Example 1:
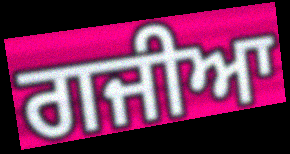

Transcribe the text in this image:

ਗਜੀਆ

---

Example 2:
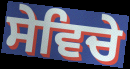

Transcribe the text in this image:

ਸੇਵਿਚੇ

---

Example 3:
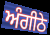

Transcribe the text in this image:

ਅੰਗੀਠੇ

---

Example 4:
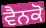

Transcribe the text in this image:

ਵੈਨਕੋ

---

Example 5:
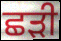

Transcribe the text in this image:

ਛੜੀ